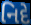
નિદે